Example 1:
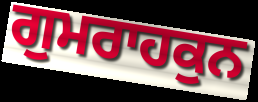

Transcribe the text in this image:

ਗੁਮਰਾਹਕੁਨ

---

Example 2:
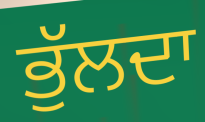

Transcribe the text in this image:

ਭੁੱਲਦਾ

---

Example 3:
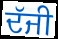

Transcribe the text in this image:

ਦੱਜੀ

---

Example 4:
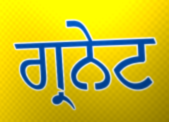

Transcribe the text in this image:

ਗ੍ਰਨੇਟ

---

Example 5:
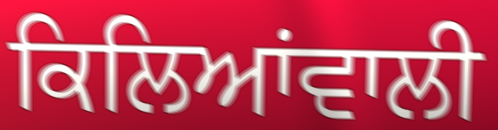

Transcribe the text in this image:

ਕਿਲਿਆਂਵਾਲੀ